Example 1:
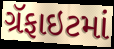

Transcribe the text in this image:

ગ્રૅફાઇટમાં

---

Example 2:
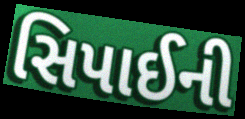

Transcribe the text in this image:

સિપાઈની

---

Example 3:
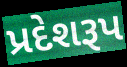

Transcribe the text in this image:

પ્રદેશરૂપ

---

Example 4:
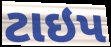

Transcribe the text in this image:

ટાઇપ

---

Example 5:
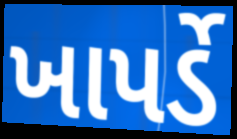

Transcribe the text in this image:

ખાપર્ડે